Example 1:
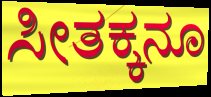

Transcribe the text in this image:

ಸೀತಕ್ಕನೂ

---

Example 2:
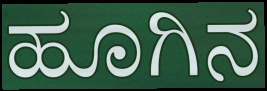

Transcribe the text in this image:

ಹೂಗಿನ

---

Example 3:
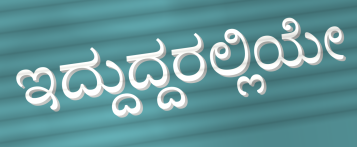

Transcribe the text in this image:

ಇದ್ದುದ್ದರಲ್ಲಿಯೇ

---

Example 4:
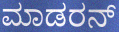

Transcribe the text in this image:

ಮಾಡರನ್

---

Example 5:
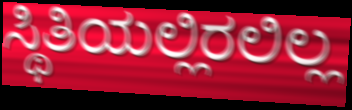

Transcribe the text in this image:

ಸ್ಥಿತಿಯಲ್ಲಿರಲಿಲ್ಲ